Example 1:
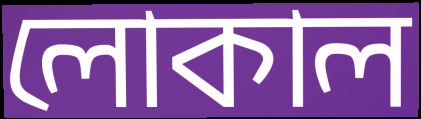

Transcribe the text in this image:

লোকাল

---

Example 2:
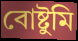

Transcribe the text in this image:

বোষ্টুমি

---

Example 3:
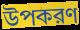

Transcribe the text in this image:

উপকরণ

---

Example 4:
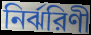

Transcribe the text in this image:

নির্ঝরিণী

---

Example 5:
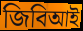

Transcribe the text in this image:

জিবিআই